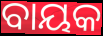
ବାୟକ